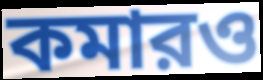
কমারও